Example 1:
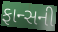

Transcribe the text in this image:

ફાન્સની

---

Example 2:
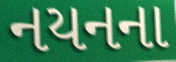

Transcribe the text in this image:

નયનના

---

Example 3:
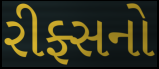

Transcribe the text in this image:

રીફ્સનો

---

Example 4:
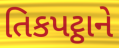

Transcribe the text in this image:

તિકપટ્ઠાને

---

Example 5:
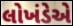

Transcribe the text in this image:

લોખંડેએ